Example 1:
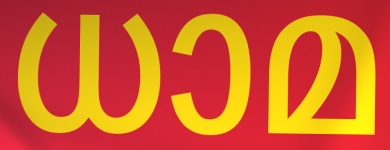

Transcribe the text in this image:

ധാമ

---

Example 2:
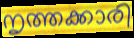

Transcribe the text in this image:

നൃത്തക്കാരി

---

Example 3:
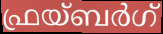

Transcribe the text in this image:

ഫ്രയ്ബർഗ്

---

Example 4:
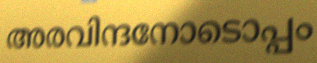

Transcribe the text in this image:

അരവിന്ദനോടൊപ്പം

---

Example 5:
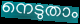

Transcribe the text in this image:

നെടുതാം